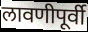
लावणीपूर्वी